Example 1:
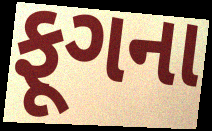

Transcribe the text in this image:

ફૂગના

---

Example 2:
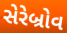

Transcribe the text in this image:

સેરેબ્રોવ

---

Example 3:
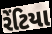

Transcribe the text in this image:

રેંટિયા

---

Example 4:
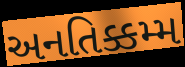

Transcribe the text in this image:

અનતિક્કમ્મ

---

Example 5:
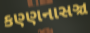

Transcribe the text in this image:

કણ્ણનાસઞ્ચ